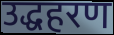
उद्धहरण